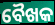
ବୈଖକ